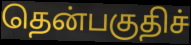
தென்பகுதிச்